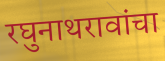
रघुनाथरावांचा